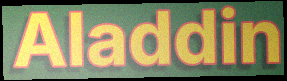
Aladdin